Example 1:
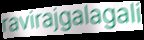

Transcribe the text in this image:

ravirajgalagali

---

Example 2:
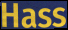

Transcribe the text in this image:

Hass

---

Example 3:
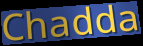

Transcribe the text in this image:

Chadda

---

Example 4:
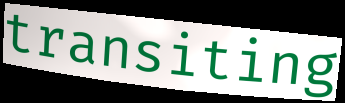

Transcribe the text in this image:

transiting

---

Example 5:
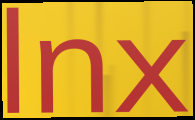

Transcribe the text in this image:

lnx